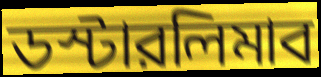
ডস্টারলিমাব